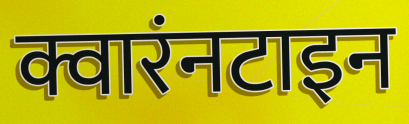
क्वारंनटाइन